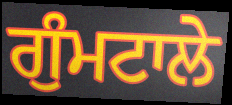
ਗੁੰਮਟਾਲੇ